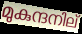
മുകുന്ദനില്